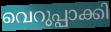
വെറുപ്പാക്കി